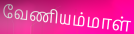
வேணியம்மாள்